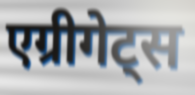
एग्रीगेट्स